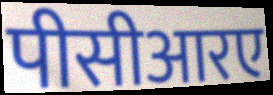
पीसीआरए